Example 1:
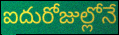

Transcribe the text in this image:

ఐదురోజుల్లోనే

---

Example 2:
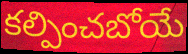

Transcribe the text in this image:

కల్పించబోయే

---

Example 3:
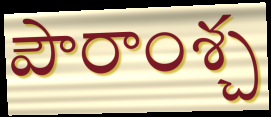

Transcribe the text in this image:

పౌరాంశ్చ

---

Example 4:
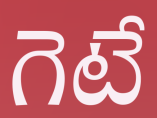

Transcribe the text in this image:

గెటే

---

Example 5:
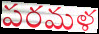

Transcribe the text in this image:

పరమళ